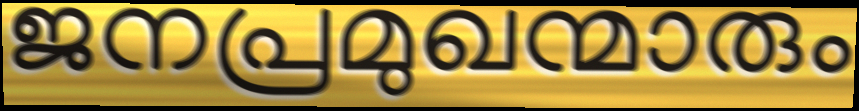
ജനപ്രമുഖന്മാരും